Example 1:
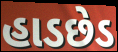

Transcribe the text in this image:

હાડછેડ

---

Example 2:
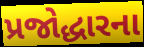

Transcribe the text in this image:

પ્રજોદ્ધારના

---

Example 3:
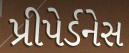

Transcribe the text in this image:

પ્રીપેર્ડનેસ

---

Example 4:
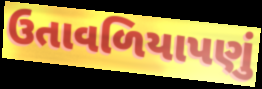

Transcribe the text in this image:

ઉતાવળિયાપણું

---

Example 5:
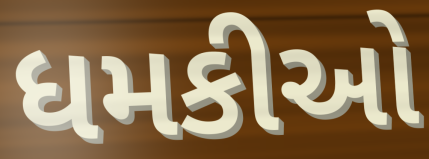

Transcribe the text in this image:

ધમકીઓ